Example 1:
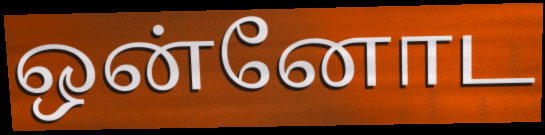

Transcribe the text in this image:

ஒன்னோட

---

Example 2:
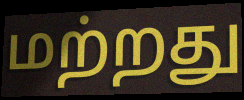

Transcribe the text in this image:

மற்றது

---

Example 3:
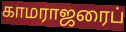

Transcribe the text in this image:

காமராஜரைப்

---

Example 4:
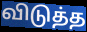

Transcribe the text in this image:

விடுத்த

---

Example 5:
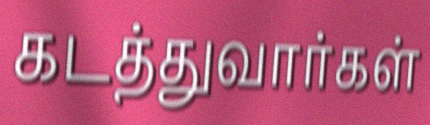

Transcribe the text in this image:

கடத்துவார்கள்